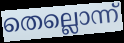
തെല്ലൊന്ന്